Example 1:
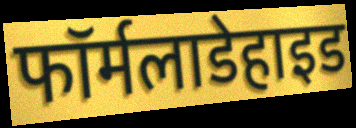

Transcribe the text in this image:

फॉर्मलाडेहाइड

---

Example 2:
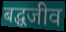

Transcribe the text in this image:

बद्धजीव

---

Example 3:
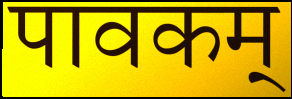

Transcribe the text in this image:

पावकम्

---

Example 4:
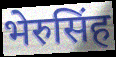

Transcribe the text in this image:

भेरुसिंह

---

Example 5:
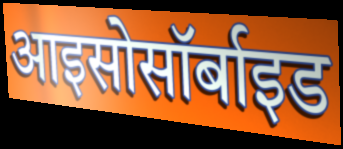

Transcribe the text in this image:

आइसोसॉर्बाइड